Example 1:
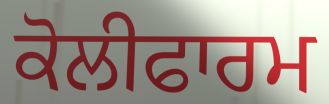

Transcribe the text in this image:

ਕੋਲੀਫਾਰਮ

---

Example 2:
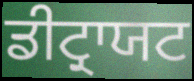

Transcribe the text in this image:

ਡੀਟ੍ਰਾਯਟ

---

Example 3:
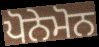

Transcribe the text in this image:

ਪੋਨੇਮੋਨ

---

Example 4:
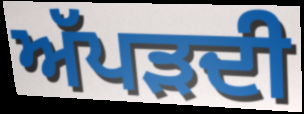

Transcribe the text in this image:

ਅੱਪੜਦੀ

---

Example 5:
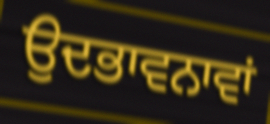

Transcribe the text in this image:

ਉਦਭਾਵਨਾਵਾਂ